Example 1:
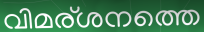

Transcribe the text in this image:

വിമര്ശനത്തെ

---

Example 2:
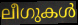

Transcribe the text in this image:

ലീഗുകൾ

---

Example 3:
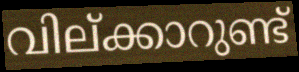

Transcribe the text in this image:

വില്ക്കാറുണ്ട്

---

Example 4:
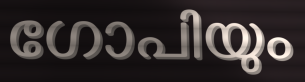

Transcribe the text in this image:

ഗോപിയും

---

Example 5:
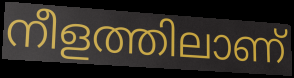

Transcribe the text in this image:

നീളത്തിലാണ്